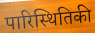
पारिस्थितिकी